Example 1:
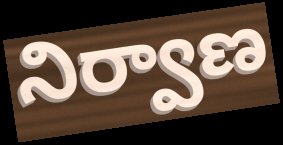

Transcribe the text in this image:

నిర్వాణ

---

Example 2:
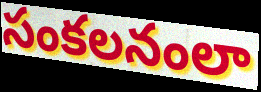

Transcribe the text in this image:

సంకలనంలా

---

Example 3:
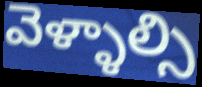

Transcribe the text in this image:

వెళ్ళాల్సి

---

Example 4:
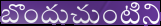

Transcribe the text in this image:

బొందుచుంటిని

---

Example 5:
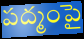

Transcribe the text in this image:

పద్మంపై